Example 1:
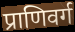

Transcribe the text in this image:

प्राणिवर्ग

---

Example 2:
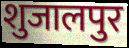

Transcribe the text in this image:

शुजालपुर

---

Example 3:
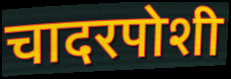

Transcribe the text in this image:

चादरपोशी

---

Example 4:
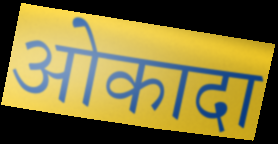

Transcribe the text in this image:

ओकादा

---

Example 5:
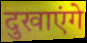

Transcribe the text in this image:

दुखाएंगे